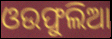
ଓଉଫୁଲିଆ